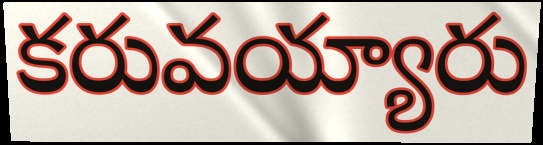
కరువయ్యారు